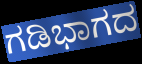
ಗಡಿಭಾಗದ